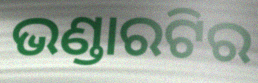
ଭଣ୍ଡାରଟିର